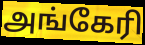
அங்கேரி